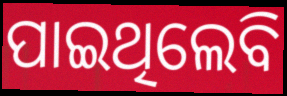
ପାଇଥିଲେବି